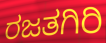
ರಜತಗಿರಿ